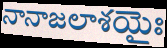
నానాజలాశయైః